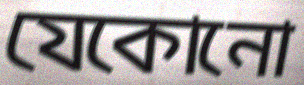
যেকোনো